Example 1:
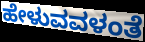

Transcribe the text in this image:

ಹೇಳುವವಳಂತೆ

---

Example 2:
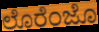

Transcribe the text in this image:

ಲೊರೆಂಜೊ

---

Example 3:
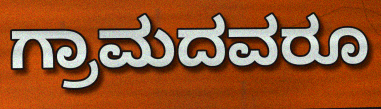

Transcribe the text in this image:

ಗ್ರಾಮದವರೂ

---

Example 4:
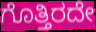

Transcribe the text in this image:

ಗೊತ್ತಿರದೇ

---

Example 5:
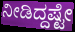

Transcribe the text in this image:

ನೀಡಿದ್ದಷ್ಟೇ